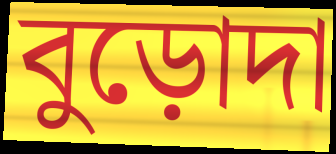
বুড়োদা